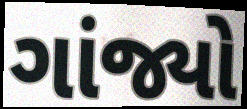
ગાંજ્યો